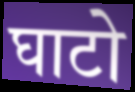
घाटो